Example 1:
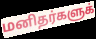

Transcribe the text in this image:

மனிதர்களுக்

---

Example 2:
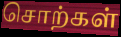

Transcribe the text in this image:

சொற்கள்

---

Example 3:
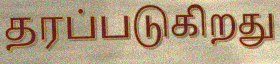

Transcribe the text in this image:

தரப்படுகிறது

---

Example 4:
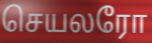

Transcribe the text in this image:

செயலரோ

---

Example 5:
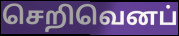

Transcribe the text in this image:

செறிவெனப்